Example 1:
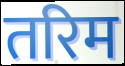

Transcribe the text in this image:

तरिम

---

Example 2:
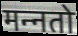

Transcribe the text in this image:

मन्नतो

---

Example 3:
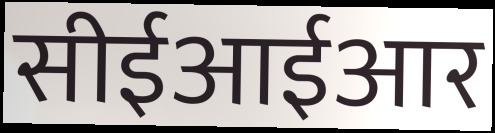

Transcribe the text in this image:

सीईआईआर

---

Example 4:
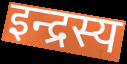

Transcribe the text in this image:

इन्द्रस्य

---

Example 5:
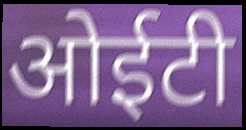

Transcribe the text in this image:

ओईटी